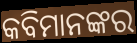
କବିମାନଙ୍କର